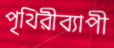
পৃথিৱীব্যাপী